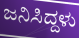
ಜನಿಸಿದ್ದಳು